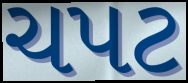
ચપટ